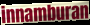
innamburan